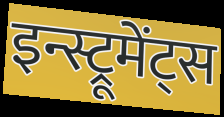
इन्स्ट्रूमेंट्स